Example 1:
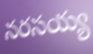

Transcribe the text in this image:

నరసయ్య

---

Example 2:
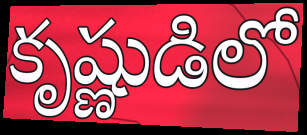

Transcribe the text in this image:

కృష్ణుడిలో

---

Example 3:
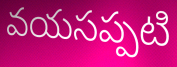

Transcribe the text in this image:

వయసప్పటి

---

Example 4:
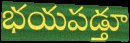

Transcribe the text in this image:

భయపడ్తూ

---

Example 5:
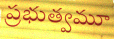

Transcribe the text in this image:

ప్రభుత్వమూ